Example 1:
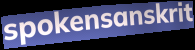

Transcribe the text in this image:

spokensanskrit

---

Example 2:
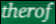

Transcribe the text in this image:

therof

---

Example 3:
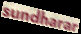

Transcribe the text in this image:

sundharar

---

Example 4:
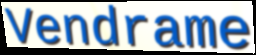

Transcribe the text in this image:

Vendrame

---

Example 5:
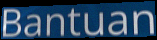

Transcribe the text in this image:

Bantuan